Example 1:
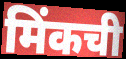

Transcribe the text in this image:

मिंकची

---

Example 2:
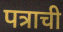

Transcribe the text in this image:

पत्राची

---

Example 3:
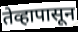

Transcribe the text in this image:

तेव्हापासून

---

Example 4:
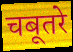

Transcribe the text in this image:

चबूतरे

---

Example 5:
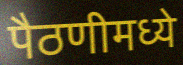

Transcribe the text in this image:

पैठणीमध्ये